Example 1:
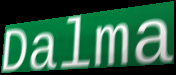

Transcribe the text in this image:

Dalma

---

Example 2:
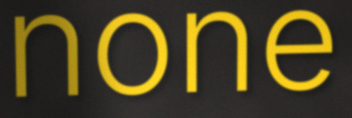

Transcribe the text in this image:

none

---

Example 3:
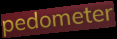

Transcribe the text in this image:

pedometer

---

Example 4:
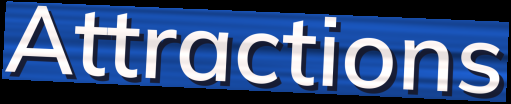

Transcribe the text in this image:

Attractions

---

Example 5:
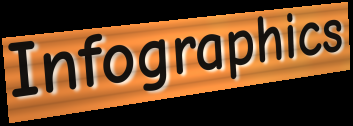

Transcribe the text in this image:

Infographics